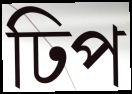
ঢিপ